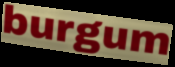
burgum